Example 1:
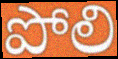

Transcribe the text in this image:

పోలి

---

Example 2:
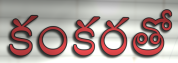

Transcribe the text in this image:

కంకరతో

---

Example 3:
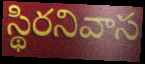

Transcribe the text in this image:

స్థిరనివాస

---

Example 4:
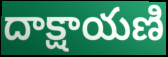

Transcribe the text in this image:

దాక్షాయణి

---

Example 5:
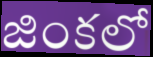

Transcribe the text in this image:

జింకలో